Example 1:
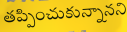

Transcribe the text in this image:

తప్పించుకున్నానని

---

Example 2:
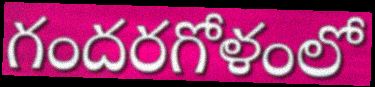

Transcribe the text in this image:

గందరగోళంలో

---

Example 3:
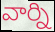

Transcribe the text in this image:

వార్ని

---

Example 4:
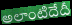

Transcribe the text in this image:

అలాంటిదేదీ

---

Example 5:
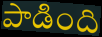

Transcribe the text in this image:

పాడింది